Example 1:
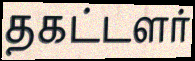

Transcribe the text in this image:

தகட்டளர்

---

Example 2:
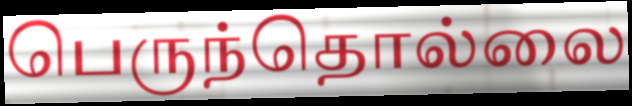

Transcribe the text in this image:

பெருந்தொல்லை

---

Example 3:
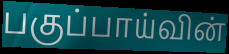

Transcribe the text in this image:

பகுப்பாய்வின்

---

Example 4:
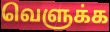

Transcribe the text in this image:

வெளுக்க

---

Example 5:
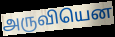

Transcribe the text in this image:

அருவியென